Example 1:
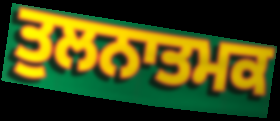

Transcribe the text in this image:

ਤੁਲਨਾਤਮਕ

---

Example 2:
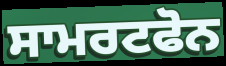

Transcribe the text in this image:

ਸਾਮਰਟਫੋਨ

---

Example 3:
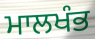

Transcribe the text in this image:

ਮਾਲਖੰਭ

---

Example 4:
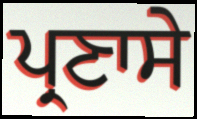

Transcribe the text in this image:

ਪ੍ਰਣਾਸੇ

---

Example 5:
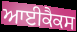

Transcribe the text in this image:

ਆਈਕੈਕਸ